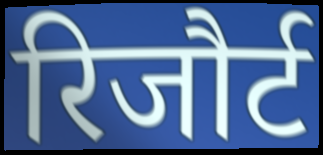
रिजौर्ट